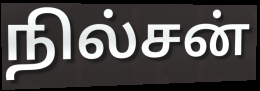
நில்சன்